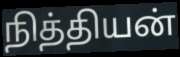
நித்தியன்